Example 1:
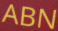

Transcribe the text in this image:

ABN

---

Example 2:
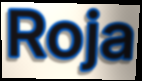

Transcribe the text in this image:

Roja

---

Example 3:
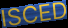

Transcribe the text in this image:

ISCED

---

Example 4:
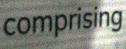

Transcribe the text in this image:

comprising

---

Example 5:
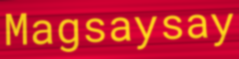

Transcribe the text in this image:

Magsaysay